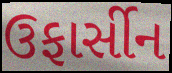
ઉફાર્સીન